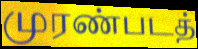
முரண்படத்